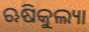
ଋଷିକୁଲ୍ୟା